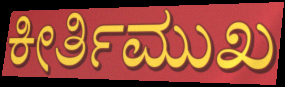
ಕೀರ್ತಿಮುಖ